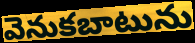
వెనుకబాటును